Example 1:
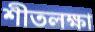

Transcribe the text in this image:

শীতলক্ষা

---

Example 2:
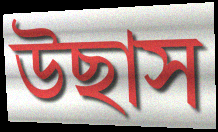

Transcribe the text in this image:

উছাস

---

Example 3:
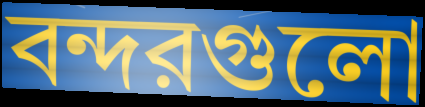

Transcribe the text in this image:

বন্দরগুলো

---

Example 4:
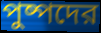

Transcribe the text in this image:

পুষ্পদের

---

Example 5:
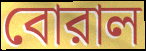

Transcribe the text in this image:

বোরাল